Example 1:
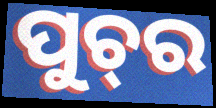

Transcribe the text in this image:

ପୁଚ୍‍ର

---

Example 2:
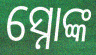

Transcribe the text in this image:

ସ୍ନୋଙ୍କ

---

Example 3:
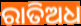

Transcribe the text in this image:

ରାତିଅଧ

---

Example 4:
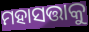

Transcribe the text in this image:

ମହାସତ୍ତାକୁ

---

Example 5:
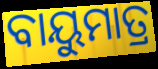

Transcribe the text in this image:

ବାୟୁମାତ୍ର